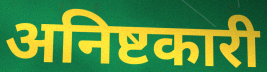
अनिष्टकारी